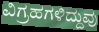
ವಿಗ್ರಹಗಳಿದ್ದುವು